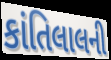
કાંતિલાલની